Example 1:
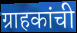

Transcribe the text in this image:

ग्राहकांची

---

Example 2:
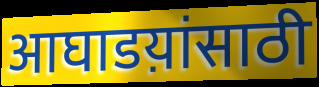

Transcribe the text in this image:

आघाडय़ांसाठी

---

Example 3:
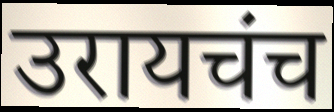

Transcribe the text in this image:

उरायचंच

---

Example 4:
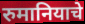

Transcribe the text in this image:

रुमानियाचे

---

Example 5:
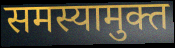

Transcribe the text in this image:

समस्यामुक्त